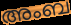
അംബ